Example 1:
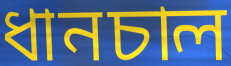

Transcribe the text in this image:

ধানচাল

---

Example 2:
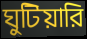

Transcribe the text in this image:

ঘুটিয়ারি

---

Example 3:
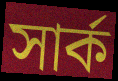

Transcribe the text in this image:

সার্ক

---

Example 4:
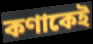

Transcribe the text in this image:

কণাকেই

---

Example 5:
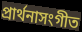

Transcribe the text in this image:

প্রার্থনাসংগীত